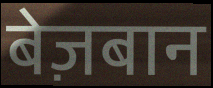
बेज़बान